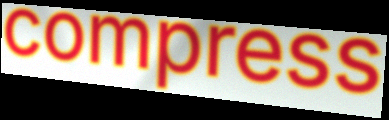
compress